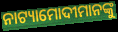
ନାଟ୍ୟାମୋଦୀମାନଙ୍କୁ